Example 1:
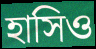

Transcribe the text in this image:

হাসিও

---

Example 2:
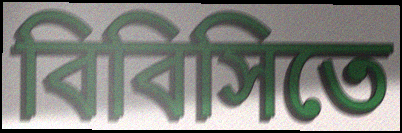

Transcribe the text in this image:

বিবিসিতে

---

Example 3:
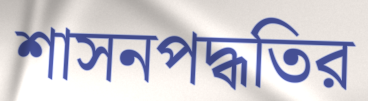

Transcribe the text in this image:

শাসনপদ্ধতির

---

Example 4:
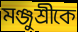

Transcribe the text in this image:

মঞ্জুশ্রীকে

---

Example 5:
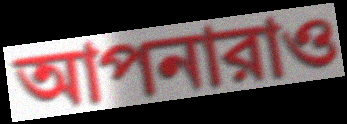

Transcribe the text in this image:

আপনারাও